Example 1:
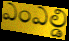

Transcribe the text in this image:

ఎంఎల్డి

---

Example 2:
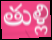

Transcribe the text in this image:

తుళ్లి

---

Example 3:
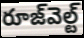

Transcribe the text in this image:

రూజ్‌వెల్ట్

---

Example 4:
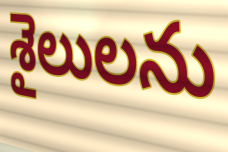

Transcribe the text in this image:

శైలులను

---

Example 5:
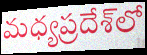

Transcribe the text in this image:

మధ్యప్రదేశ్‌లో